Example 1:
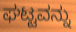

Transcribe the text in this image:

ಘಟ್ಟವನ್ನು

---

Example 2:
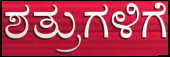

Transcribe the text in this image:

ಶತ್ರುಗಳಿಗೆ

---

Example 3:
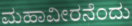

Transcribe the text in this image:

ಮಹಾವೀರನೆಂದು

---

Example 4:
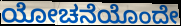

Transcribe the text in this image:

ಯೋಚನೆಯೊಂದೇ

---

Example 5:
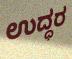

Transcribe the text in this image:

ಉದ್ಧರ